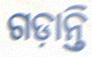
ଗଡ଼ାନ୍ତି